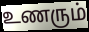
உணரும்